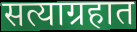
सत्याग्रहात